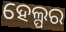
ହେଲ୍ପର